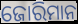
ଜୋରିମାନ